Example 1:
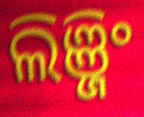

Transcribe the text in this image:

ଲିଞ୍ଜିଂ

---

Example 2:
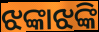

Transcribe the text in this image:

ଝଙ୍କାଝଙ୍କି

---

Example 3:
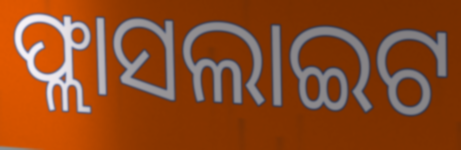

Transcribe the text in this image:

ଫ୍ଲାସଲାଇଟ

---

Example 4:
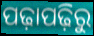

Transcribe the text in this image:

ପଢ଼ାପଢ଼ିରୁ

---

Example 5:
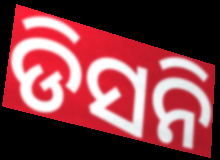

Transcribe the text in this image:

ଡିସନି